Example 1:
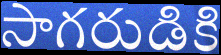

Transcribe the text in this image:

సాగరుడికి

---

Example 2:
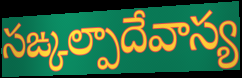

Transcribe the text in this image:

సఙ్కల్పాదేవాస్య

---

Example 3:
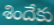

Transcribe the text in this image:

శిందేకు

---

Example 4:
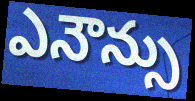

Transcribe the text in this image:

ఎనౌన్సు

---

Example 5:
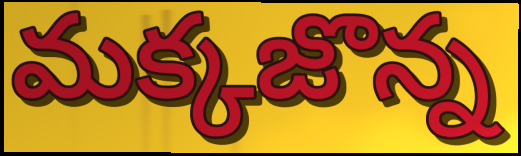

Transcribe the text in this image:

మక్కజొన్న